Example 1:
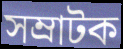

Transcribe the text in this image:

সম্ৰাটক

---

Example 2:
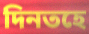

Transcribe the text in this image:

দিনতহে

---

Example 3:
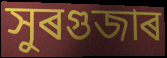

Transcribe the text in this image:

সুৰগুজাৰ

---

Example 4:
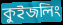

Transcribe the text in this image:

কুইজলিং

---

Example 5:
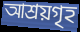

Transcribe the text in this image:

আশ্ৰয়গৃহ